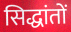
सिद्धांतों